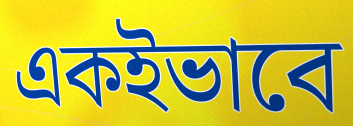
একইভাবে